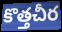
కొత్తచీర